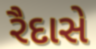
રૈદાસે